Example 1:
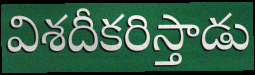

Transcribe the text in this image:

విశదీకరిస్తాడు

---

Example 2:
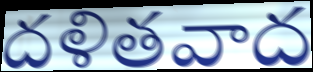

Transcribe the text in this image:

దళితవాద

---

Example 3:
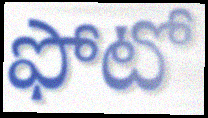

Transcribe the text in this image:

ఫోటో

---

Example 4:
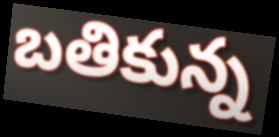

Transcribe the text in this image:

బతికున్న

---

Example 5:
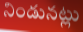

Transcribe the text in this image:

నిండునట్లు